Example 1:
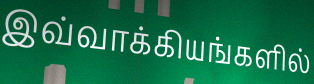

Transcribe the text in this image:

இவ்வாக்கியங்களில்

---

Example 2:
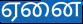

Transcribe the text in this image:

ஏனை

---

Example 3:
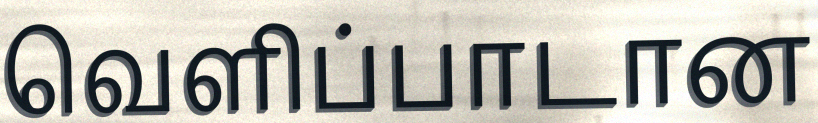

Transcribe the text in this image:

வெளிப்பாடான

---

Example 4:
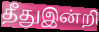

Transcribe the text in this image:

தீதுஇன்றி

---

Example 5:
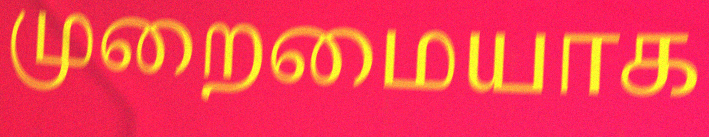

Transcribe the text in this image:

முறைமையாக